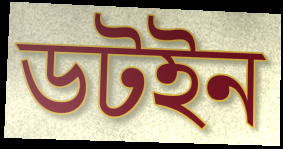
ডটইন